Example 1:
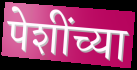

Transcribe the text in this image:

पेशींच्या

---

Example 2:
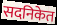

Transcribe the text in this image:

सदनिकेत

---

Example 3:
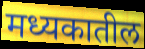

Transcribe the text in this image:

मध्यकातील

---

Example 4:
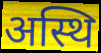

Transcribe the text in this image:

अस्थि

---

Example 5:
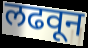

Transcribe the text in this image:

लढवून